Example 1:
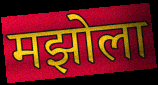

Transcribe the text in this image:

मझोला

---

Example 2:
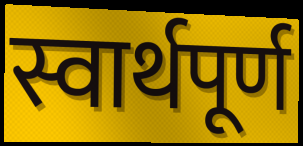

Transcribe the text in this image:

स्वार्थपूर्ण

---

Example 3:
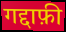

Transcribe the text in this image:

गद्दाफ़ी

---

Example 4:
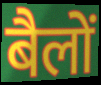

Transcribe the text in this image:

बैलों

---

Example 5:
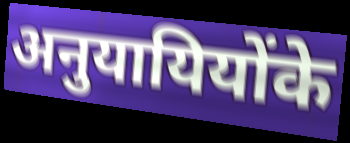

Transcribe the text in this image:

अनुयायियोंके